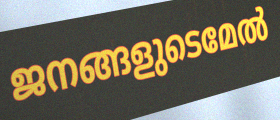
ജനങ്ങളുടെമേൽ